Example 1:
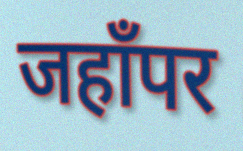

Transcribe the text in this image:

जहाँपर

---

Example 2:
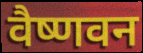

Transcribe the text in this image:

वैष्णवन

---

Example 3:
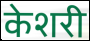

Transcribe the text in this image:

केशरी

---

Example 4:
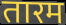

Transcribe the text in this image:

तारम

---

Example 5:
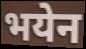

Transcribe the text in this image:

भयेन